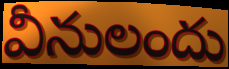
వీనులందు